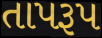
તાપરૂપ